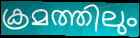
ക്രമത്തിലും